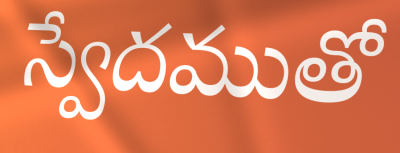
స్వేదముతో